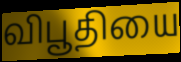
விபூதியை